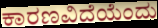
ಕಾರಣವಿದೆಯೆಂದು